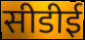
सीडीई